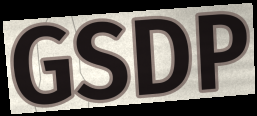
GSDP